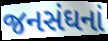
જનસંઘનાં